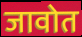
जावोत